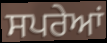
ਸਪਰੇਆਂ